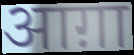
आग़ा